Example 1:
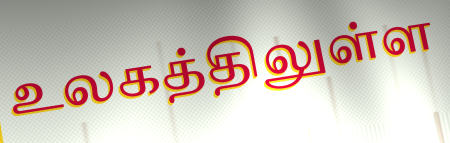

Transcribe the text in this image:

உலகத்திலுள்ள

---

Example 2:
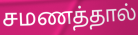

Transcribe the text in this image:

சமணத்தால்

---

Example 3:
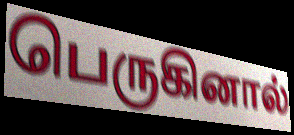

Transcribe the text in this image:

பெருகினால்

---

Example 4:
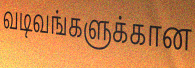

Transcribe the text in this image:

வடிவங்களுக்கான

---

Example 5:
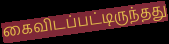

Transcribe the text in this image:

கைவிடப்பட்டிருந்தது